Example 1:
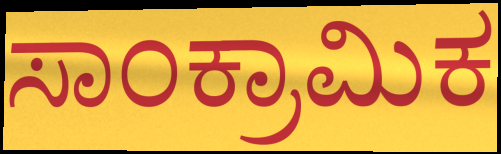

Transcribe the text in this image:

ಸಾಂಕ್ರಾಮಿಕ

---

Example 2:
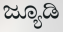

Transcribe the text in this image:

ಜ್ಯೂಡಿ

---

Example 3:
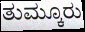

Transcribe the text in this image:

ತುಮ್ಕೂರು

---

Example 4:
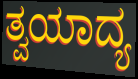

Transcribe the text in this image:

ತ್ವಯಾದ್ಯ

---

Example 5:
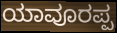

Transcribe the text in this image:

ಯಾವೂರಪ್ಪ